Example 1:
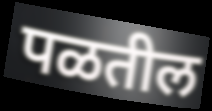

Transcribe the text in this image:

पळतील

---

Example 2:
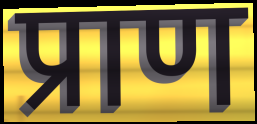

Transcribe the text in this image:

प्राण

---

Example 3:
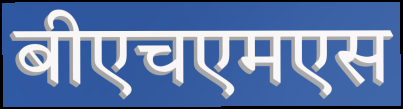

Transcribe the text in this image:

बीएचएमएस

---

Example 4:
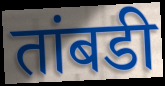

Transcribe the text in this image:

तांबडी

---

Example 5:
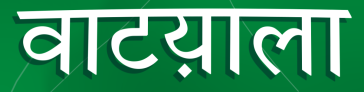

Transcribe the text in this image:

वाटय़ाला